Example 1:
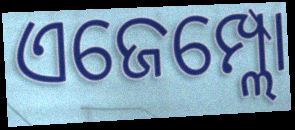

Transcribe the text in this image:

ଏଜେମ୍ପ୍ଲୋ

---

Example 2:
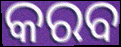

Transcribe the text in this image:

କରବ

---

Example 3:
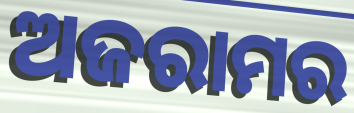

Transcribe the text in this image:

ଅଜରାମର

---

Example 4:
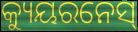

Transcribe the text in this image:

କ୍ୟୁୟରନେସ୍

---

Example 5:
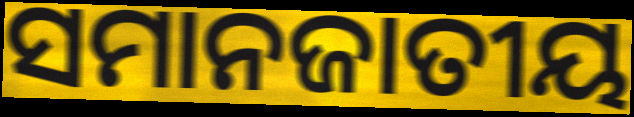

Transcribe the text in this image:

ସମାନଜାତୀୟ